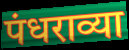
पंधराव्या